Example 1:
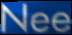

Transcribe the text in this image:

Nee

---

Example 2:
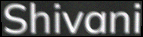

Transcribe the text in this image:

Shivani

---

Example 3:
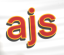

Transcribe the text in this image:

ajs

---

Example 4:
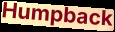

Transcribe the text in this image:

Humpback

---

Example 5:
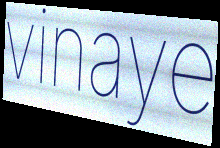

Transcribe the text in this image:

vinaye